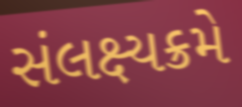
સંલક્ષ્યક્રમે